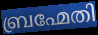
ബ്രഹ്മേതി